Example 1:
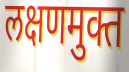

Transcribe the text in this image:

लक्षणमुक्त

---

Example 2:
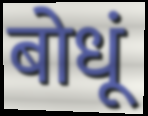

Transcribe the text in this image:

बोधूं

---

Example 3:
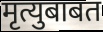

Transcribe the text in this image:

मृत्युबाबत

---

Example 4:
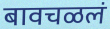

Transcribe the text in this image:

बावचळलं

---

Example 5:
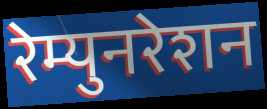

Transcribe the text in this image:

रेम्युनरेशन